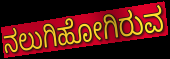
ನಲುಗಿಹೋಗಿರುವ